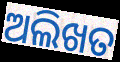
ଅଲିଖତ